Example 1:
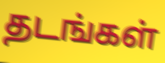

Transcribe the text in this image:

தடங்கள்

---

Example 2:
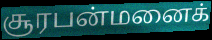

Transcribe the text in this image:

சூரபன்மனைக்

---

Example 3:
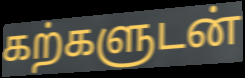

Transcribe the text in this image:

கற்களுடன்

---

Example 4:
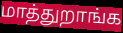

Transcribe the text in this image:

மாத்துறாங்க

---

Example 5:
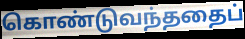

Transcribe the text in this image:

கொண்டுவந்ததைப்